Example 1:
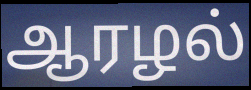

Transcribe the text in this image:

ஆரழல்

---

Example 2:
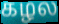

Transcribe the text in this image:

கழல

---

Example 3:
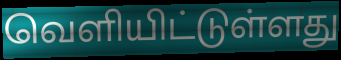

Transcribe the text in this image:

வெளியிட்டுள்ளது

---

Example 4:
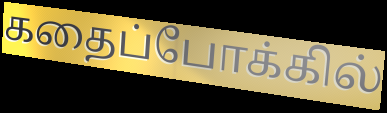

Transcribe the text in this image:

கதைப்போக்கில்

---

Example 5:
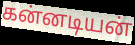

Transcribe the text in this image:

கன்னடியன்